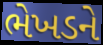
ભેખડને